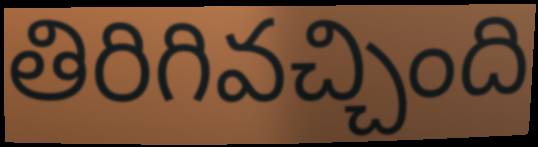
తిరిగివచ్చింది